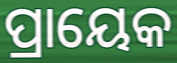
ପ୍ରାୟେକ